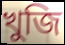
খুজি